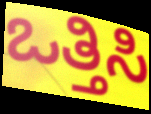
ಒತ್ತಿಸಿ